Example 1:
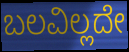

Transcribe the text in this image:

ಬಲವಿಲ್ಲದೇ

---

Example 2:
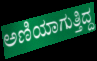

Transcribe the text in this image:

ಅಣಿಯಾಗುತ್ತಿದ್ದ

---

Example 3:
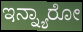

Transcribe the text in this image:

ಇನ್ನ್ಯಾರೋ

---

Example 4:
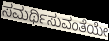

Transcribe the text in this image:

ಸಮರ್ಥಿಸುವಂತೆಯೇ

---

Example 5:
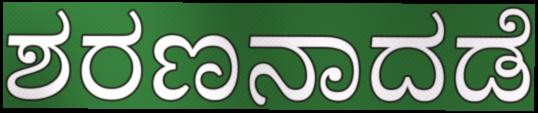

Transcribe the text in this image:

ಶರಣನಾದಡೆ